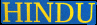
HINDU